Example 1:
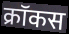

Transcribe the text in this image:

क्रॉकस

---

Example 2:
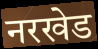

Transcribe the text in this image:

नरखेड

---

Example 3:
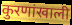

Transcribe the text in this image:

कुरणांखाली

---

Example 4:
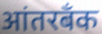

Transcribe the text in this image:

आंतरबँक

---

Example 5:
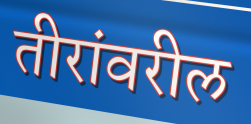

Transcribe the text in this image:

तीरांवरील